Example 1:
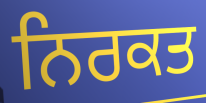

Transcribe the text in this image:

ਨਿਰਕਤ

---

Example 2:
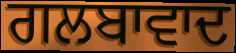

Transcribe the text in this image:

ਗਲਬਾਵਾਦ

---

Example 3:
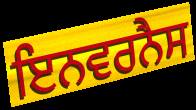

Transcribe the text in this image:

ਇਨਵਰਨੈਸ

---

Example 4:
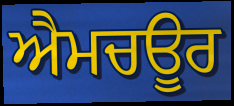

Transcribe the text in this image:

ਐਮਚਊਰ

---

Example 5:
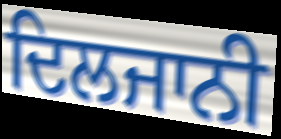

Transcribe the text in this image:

ਦਿਲਜਾਨੀ